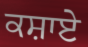
ਕਸ਼ਾਏ